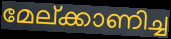
മേല്ക്കാണിച്ച